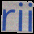
rii